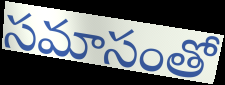
సమాసంతో